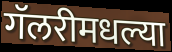
गॅलरीमधल्या